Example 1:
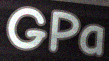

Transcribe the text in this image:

GPa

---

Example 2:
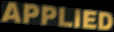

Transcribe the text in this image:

APPLIED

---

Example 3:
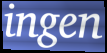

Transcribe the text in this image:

ingen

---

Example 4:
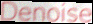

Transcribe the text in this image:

Denoise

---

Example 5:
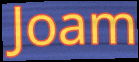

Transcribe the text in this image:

Joam